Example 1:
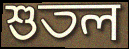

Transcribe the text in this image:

শুতল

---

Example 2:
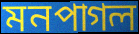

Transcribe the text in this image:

মনপাগল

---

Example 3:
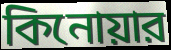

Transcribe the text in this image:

কিনোয়ার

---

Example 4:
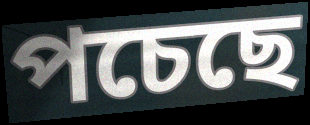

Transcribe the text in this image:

পচেছে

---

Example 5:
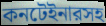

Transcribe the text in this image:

কনটেইনারসহ